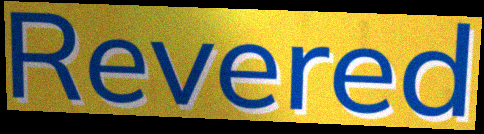
Revered